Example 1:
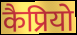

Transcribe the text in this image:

कैप्रियो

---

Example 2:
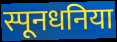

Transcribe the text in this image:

स्पूनधनिया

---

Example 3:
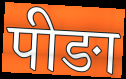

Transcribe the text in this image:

पीङा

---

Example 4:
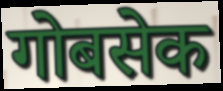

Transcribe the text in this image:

गोबसेक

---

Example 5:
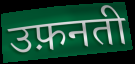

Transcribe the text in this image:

उफ़नती